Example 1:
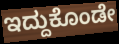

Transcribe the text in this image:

ಇದ್ದುಕೊಂಡೇ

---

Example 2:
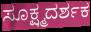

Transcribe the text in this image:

ಸೂಕ್ಷ್ಮದರ್ಶಕ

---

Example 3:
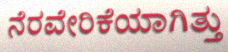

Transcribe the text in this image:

ನೆರವೇರಿಕೆಯಾಗಿತ್ತು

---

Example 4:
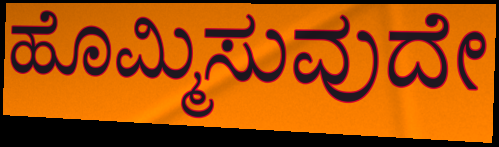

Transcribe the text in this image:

ಹೊಮ್ಮಿಸುವುದೇ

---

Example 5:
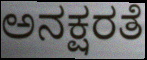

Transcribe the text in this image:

ಅನಕ್ಷರತೆ